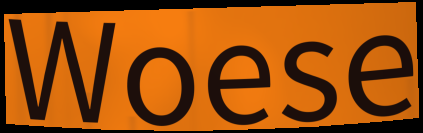
Woese